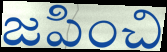
జపించి